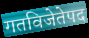
गतविजेतेपद